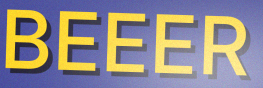
BEEER